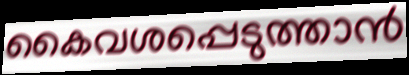
കൈവശപ്പെടുത്താൻ